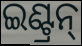
ଇଣ୍ଟ୍ରନ୍